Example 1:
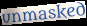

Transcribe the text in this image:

unmasked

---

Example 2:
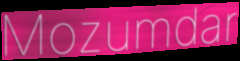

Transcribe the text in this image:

Mozumdar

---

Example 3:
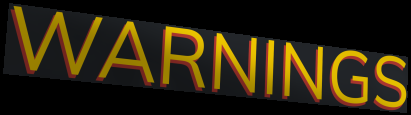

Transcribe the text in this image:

WARNINGS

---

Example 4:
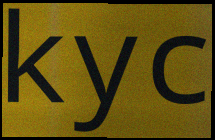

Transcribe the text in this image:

kyc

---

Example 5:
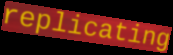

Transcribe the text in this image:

replicating